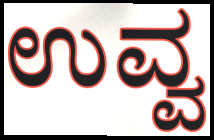
ಉವ್ವ